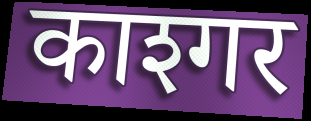
काश्गर